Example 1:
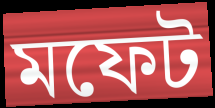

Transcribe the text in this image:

মফেট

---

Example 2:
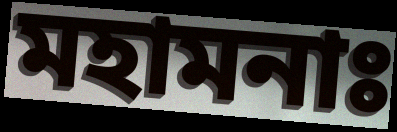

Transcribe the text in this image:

মহামনাঃ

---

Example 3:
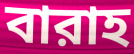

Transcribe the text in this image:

বারাহ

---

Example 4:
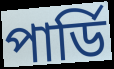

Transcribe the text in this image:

পার্ডি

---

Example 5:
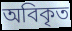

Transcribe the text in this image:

অবিকৃত